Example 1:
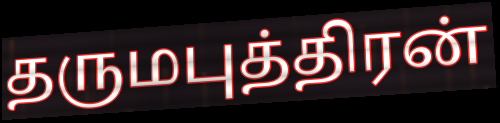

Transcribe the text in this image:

தருமபுத்திரன்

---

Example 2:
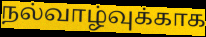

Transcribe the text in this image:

நல்வாழ்வுக்காக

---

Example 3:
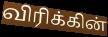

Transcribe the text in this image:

விரிக்கின்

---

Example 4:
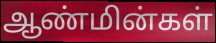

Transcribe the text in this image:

ஆண்மின்கள்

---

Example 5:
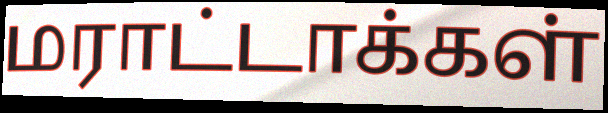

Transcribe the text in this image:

மராட்டாக்கள்